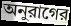
অনুরাগের